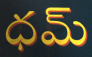
ధమ్